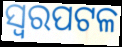
ସ୍ୱରପଟଳ